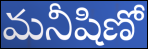
మనీషిణో